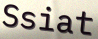
Ssiat